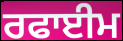
ਰਫਾਈਮ